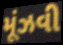
મૂંઝવી